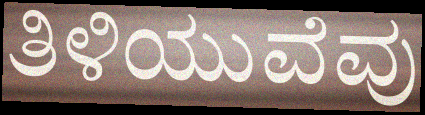
ತಿಳಿಯುವೆವು